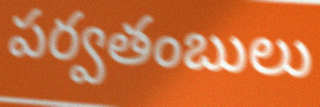
పర్వతంబులు